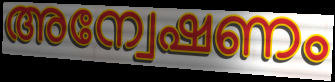
അന്വേഷണം